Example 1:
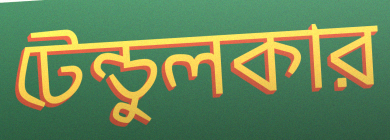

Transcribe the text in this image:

টেন্ডুলকার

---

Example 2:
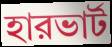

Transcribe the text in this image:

হারভার্ট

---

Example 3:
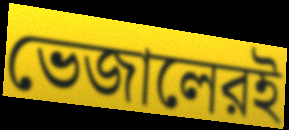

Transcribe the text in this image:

ভেজালেরই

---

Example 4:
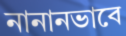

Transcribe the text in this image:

নানানভাবে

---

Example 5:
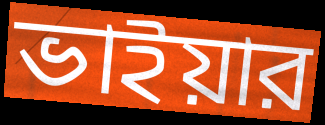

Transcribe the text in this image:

ভাইয়ার